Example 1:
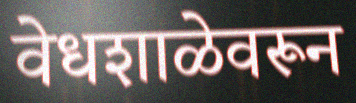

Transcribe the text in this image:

वेधशाळेवरून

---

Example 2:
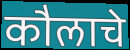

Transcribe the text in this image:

कौलाचे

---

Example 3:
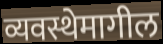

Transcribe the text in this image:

व्यवस्थेमागील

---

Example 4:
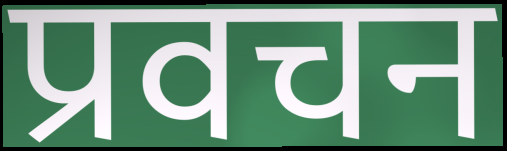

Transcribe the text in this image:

प्रवचन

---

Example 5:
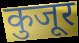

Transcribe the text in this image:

कुजूर